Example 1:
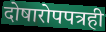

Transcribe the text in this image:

दोषारोपपत्रही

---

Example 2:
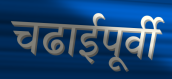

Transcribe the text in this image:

चढाईपूर्वी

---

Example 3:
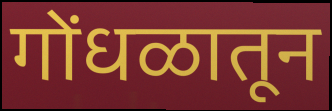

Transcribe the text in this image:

गोंधळातून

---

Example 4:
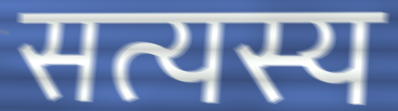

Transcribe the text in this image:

सत्यस्य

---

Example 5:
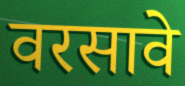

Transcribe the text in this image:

वरसावे